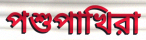
পশুপাখিরা